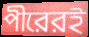
পীরেরই